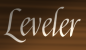
Leveler